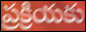
ప్రక్రియకు